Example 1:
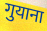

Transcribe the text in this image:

गुयाना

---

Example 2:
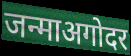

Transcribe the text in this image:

जन्माअगोदर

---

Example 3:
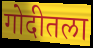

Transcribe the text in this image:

गोदीतला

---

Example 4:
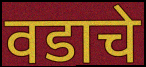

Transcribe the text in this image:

वडाचे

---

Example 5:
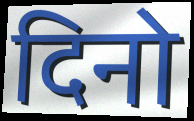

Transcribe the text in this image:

दिनो